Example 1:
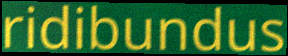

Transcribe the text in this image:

ridibundus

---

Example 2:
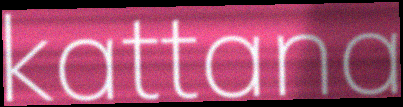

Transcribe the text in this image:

kattana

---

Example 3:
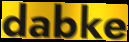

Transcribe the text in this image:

dabke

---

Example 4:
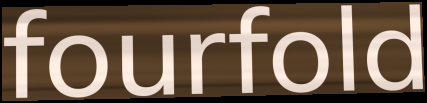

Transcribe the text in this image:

fourfold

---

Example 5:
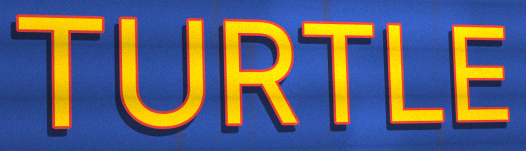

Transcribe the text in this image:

TURTLE